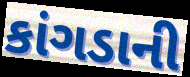
કાંગડાની